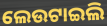
ଲେଉଟାଇଲି